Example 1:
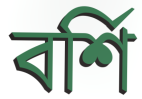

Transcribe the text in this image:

বর্শি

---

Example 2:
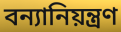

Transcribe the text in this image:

বন্যানিয়ন্ত্রণ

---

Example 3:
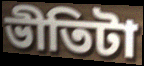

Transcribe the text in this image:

ভীতিটা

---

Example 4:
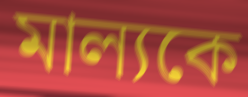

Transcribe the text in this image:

মাল্যকে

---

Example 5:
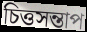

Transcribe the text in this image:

চিত্তসন্তাপ